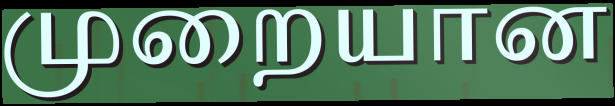
முறையான